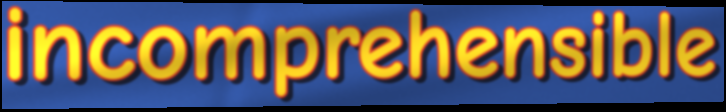
incomprehensible